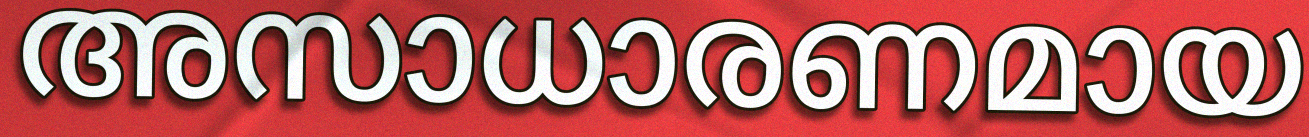
അസാധാരണമായ